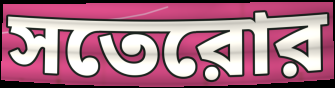
সতেরোর